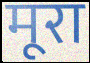
मूरा